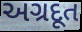
અગ્રદૂત